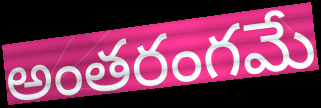
అంతరంగమే